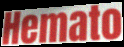
Hemato